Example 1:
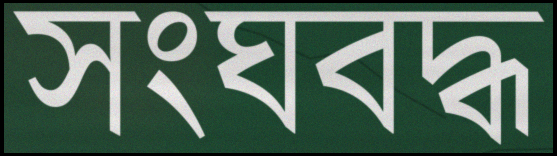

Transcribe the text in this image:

সংঘবদ্ধ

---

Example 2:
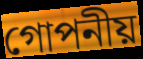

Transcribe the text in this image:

গোপনীয়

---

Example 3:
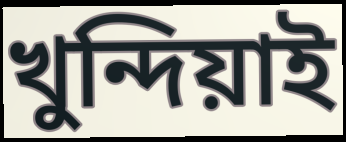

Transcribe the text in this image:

খুন্দিয়াই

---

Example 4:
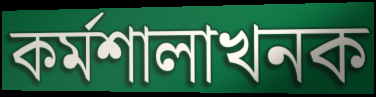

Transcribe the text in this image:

কৰ্মশালাখনক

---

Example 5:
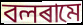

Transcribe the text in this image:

বলৰামে